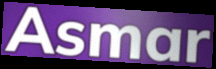
Asmar